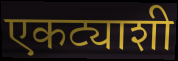
एकट्याशी